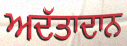
ਅਦੱਤਾਦਾਨ